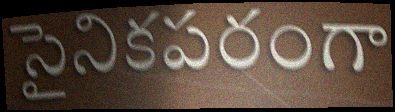
సైనికపరంగా